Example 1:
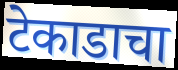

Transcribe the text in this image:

टेकाडाचा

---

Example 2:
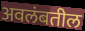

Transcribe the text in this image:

अवलंबतील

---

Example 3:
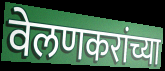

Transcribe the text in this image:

वेलणकरांच्या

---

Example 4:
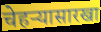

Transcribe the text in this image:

चेहऱ्यासारखा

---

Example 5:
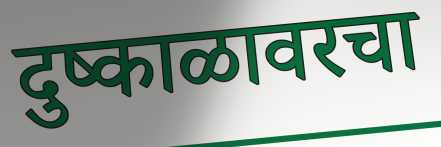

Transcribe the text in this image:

दुष्काळावरचा